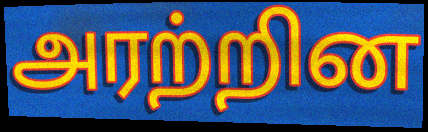
அரற்றின